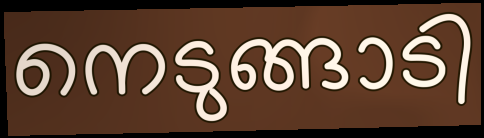
നെടുങ്ങാടി